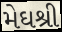
મેઘશ્રી